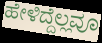
ಹೇಳಿದ್ದೆಲ್ಲವೂ